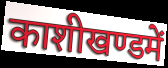
काशीखण्डमें